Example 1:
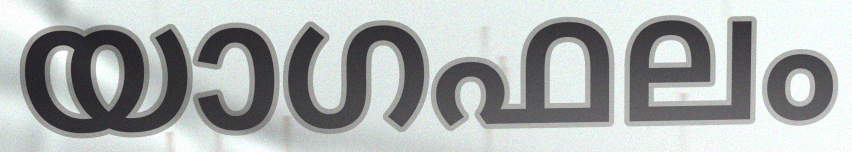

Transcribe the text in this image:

യാഗഫലം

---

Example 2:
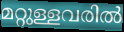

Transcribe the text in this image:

മറ്റുള്ളവരിൽ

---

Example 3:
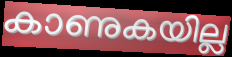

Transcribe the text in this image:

കാണുകയില്ല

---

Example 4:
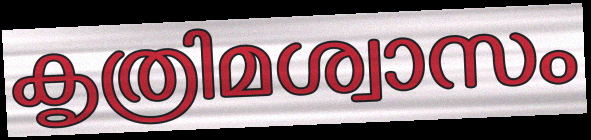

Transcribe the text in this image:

കൃത്രിമശ്വാസം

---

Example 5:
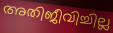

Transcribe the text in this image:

അതിജീവിച്ചില്ല